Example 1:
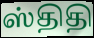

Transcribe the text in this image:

ஸ்திதி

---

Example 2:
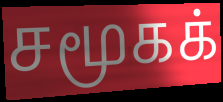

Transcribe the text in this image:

சமூகக்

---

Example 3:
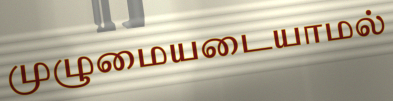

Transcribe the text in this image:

முழுமையடையாமல்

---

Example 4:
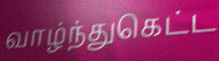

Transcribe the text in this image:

வாழ்ந்துகெட்ட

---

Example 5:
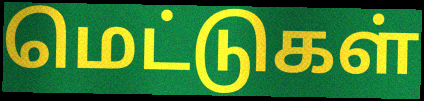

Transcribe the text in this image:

மெட்டுகள்